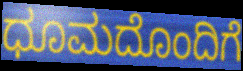
ಧೂಮದೊಂದಿಗೆ